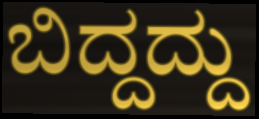
ಬಿದ್ದದ್ದು